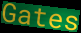
Gates